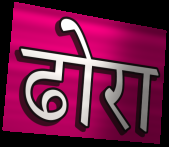
ढोरा